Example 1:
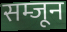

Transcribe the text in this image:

सम्जून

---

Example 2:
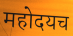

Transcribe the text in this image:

महोदयच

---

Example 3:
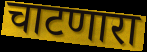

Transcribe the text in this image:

चाटणारा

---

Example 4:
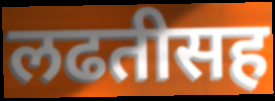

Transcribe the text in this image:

लढतीसह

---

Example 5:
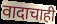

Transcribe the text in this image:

वादाचाही